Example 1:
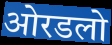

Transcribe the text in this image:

ओरडलो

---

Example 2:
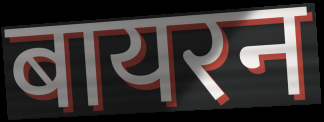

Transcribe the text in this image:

बायरन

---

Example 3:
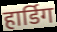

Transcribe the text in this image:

हार्डिग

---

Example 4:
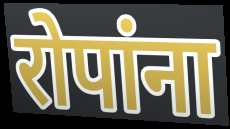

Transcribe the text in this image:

रोपांना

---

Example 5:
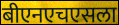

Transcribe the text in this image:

बीएनएचएसला